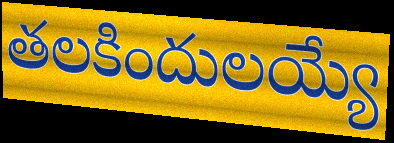
తలకిందులయ్యే